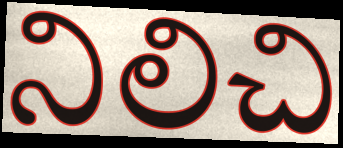
నిలిచి